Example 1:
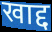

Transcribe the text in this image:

खाद्द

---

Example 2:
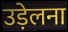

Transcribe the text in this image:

उड़ेलना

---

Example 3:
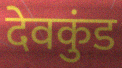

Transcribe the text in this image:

देवकुंड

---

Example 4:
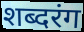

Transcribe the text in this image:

शब्दरंग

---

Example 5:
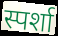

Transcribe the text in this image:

स्पर्शा